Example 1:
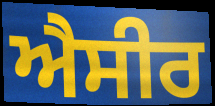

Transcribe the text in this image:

ਐਸੀਰ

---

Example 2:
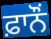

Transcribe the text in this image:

ਫ਼ਾਨੌਂ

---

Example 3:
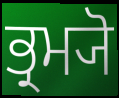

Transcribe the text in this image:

ਭ੍ਰਮ੍ਯੋ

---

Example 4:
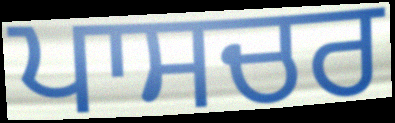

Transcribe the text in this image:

ਪਾਸਚਰ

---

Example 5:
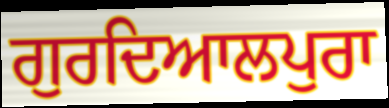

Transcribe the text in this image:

ਗੁਰਦਿਆਲਪੁਰਾ